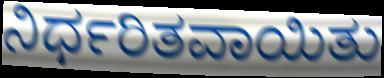
ನಿರ್ಧರಿತವಾಯಿತು